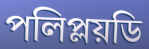
পলিপ্লয়ডি